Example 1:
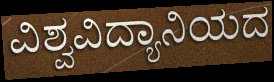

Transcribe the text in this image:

ವಿಶ್ವವಿದ್ಯಾನಿಯದ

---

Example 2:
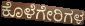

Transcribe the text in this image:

ಕೊಳೆಗೇರಿಗಳ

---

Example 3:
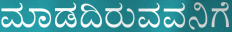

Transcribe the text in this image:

ಮಾಡದಿರುವವನಿಗೆ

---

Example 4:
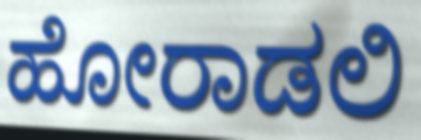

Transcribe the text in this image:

ಹೋರಾಡಲಿ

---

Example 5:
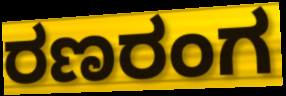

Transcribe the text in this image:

ರಣರಂಗ